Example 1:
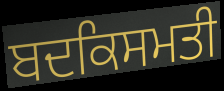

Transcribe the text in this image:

ਬਦਕਿਸਮਤੀ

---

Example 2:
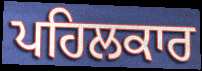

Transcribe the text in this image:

ਪਹਿਲਕਾਰ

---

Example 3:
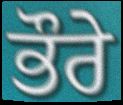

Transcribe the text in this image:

ਭੌਰੇ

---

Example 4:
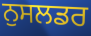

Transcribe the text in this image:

ਨੁਸਲਡਰ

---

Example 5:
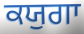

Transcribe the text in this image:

ਕਯੁਗਾ